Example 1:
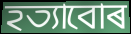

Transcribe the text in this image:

হত্যাবোৰ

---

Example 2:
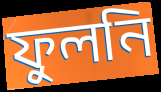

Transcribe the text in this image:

ফুলনি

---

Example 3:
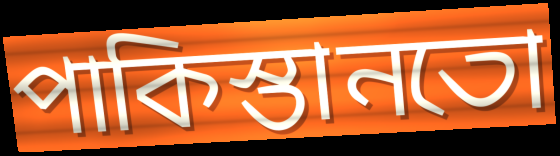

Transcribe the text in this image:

পাকিস্তানতো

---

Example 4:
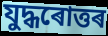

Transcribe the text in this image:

যুদ্ধৰোত্তৰ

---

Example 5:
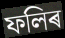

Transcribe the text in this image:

ফলিৰ